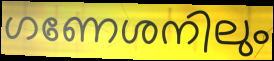
ഗണേശനിലും